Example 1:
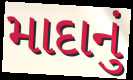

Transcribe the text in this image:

માદાનું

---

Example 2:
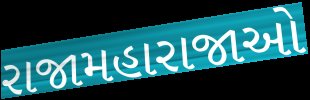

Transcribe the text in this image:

રાજામહારાજાઓ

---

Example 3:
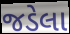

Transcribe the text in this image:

જડેલા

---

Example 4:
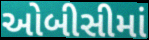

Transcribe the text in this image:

ઓબીસીમાં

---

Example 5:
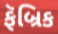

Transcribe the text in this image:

ફૅબ્રિક